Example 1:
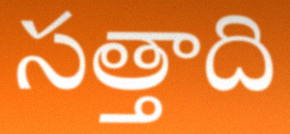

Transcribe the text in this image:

సత్తాది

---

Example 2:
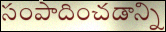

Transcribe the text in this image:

సంపాదించడాన్ని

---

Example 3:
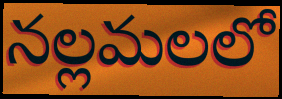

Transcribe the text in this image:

నల్లమలలో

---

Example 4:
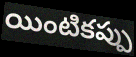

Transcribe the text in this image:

యింటికప్పు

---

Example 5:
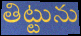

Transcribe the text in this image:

తిట్టును